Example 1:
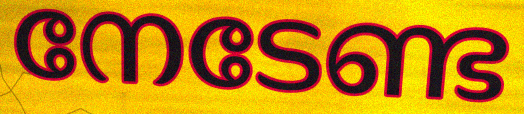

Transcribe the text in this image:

നേടേണ്ട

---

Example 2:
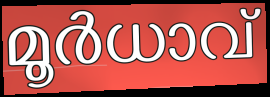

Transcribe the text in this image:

മൂർധാവ്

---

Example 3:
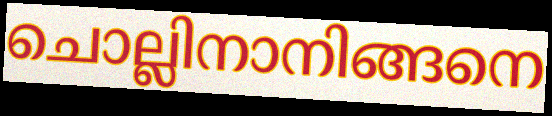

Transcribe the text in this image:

ചൊല്ലിനാനിങ്ങനെ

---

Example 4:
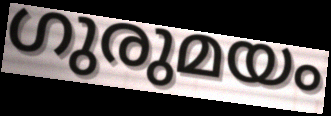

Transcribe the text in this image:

ഗുരുമയം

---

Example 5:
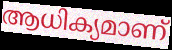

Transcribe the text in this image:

ആധിക്യമാണ്